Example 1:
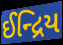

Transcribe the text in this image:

ઈન્દ્રિય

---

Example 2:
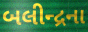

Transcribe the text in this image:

બલીન્દ્રના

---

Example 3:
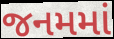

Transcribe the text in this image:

જનમમાં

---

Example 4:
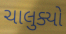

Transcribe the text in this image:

ચાલુક્યો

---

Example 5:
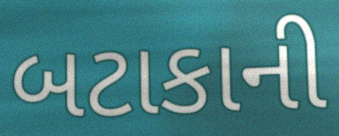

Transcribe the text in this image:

બટાકાની